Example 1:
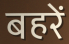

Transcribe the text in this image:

बहरें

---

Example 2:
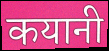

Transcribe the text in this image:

कयानी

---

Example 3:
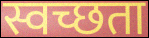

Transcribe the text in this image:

स्वच्छता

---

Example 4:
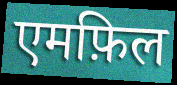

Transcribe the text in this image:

एमफ़िल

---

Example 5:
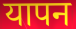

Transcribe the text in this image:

यापन